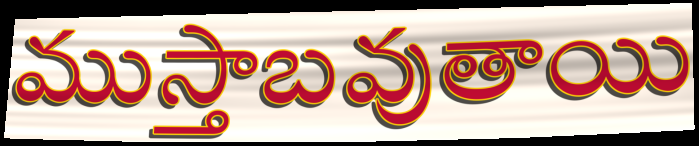
ముస్తాబవుతాయి